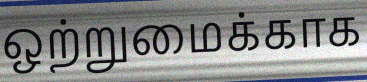
ஒற்றுமைக்காக